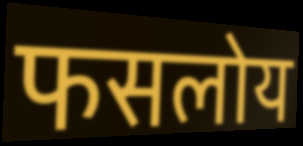
फसलोय